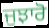
ਜੁਝਾਰੋ